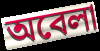
অবেলা